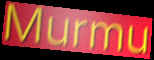
Murmu